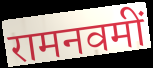
रामनवमीं